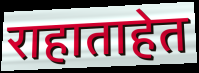
राहाताहेत